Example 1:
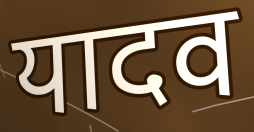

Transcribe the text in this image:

यादव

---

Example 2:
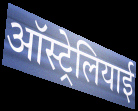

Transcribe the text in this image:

ऑस्ट्रेलियाई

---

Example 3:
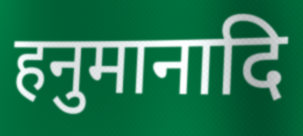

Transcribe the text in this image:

हनुमानादि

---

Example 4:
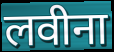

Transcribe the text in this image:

लवीना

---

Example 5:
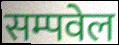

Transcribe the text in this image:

सम्पवेल